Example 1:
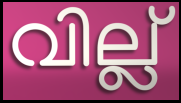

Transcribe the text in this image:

വില്ല്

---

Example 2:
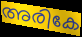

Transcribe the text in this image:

അരികേ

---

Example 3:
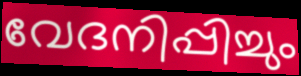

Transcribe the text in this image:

വേദനിപ്പിച്ചും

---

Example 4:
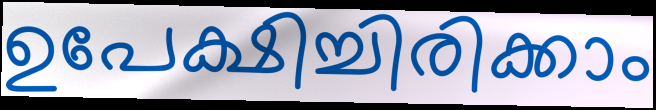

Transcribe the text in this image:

ഉപേക്ഷിച്ചിരിക്കാം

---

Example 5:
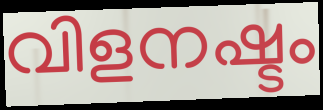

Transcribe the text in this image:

വിളനഷ്ടം